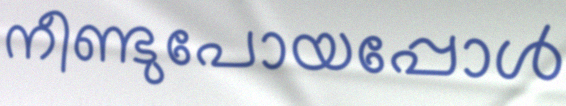
നീണ്ടുപോയപ്പോൾ